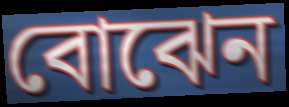
বোঝেন